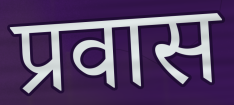
प्रवास